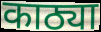
काठ्या